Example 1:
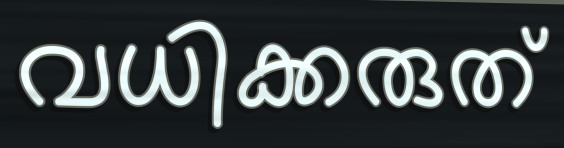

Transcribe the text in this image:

വധിക്കരുത്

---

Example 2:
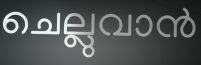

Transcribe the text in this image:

ചെല്ലുവാൻ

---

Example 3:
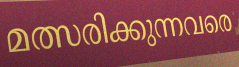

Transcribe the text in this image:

മത്സരിക്കുന്നവരെ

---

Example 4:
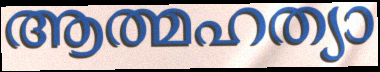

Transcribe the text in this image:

ആത്മഹത്യാ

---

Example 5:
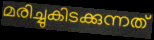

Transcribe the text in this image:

മരിച്ചുകിടക്കുന്നത്